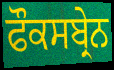
ਫੌਕਸਬ੍ਰੇਨ